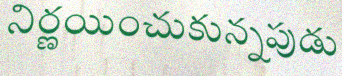
నిర్ణయించుకున్నపుడు